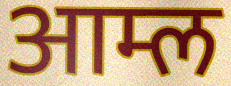
आम्‍ल